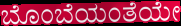
ಬೊಂಬೆಯಂತೆಯೇ